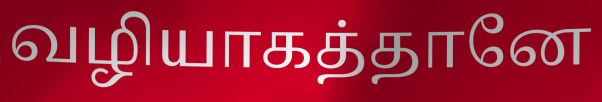
வழியாகத்தானே